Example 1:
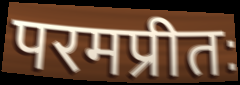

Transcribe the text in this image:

परमप्रीतः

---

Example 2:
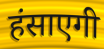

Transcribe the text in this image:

हंसाएगी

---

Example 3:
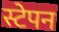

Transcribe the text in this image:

स्टेपन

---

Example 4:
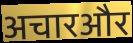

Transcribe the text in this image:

अचारऔर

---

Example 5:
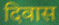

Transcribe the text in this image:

दिवास